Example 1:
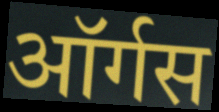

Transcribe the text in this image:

ऑर्गस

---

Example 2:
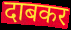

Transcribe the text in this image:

दाबकर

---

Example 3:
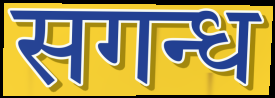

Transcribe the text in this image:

सगन्ध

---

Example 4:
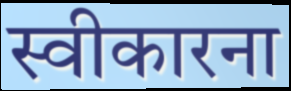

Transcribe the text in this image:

स्वीकारना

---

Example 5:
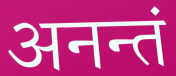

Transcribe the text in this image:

अनन्तं